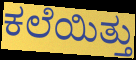
ಕಲೆಯಿತ್ತು